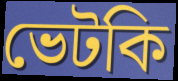
ভেটকি